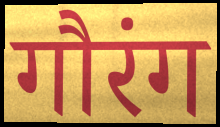
गौरंग